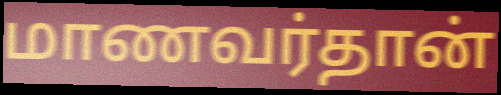
மாணவர்தான்